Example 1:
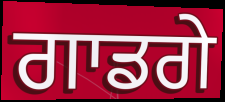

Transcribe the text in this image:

ਗਾਡਗੇ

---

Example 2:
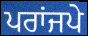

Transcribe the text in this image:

ਪਰਾਂਜਪੇ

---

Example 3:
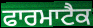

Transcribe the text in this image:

ਫਾਰਮਾਟੈਕ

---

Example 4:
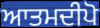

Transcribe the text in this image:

ਆਤਮਦੀਪੋ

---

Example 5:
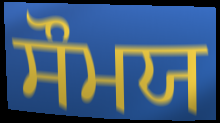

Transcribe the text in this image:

ਸੌਮਯ